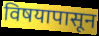
विषयापासून